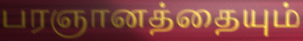
பரஞானத்தையும்